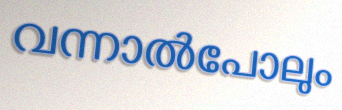
വന്നാൽപോലും